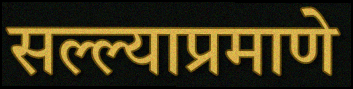
सल्ल्याप्रमाणे